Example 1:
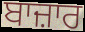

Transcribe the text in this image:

ਬਾਜ਼ਾਰ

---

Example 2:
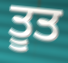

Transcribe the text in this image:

ਤੂਤ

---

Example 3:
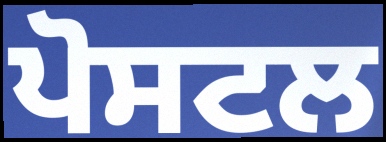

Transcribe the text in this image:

ਪੋਸਟਲ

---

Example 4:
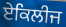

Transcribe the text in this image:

ਏਕਿਲੀਜ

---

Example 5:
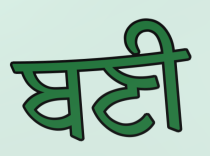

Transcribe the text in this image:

ਬਣੀ